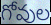
గోవుల